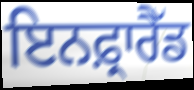
ਇਨਫ਼੍ਰਾਰੈੱਡ